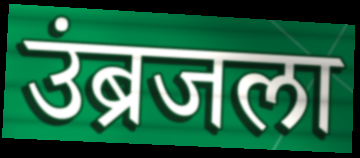
उंब्रजला